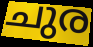
ചുര